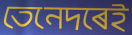
তেনেদৰেই